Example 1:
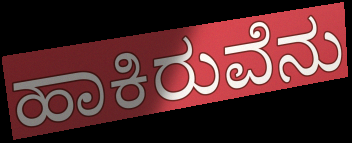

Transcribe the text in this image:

ಹಾಕಿರುವೆನು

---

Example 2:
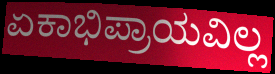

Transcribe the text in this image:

ಏಕಾಭಿಪ್ರಾಯವಿಲ್ಲ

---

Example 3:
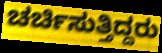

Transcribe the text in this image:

ಚರ್ಚಿಸುತ್ತಿದ್ದರು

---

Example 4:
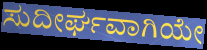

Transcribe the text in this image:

ಸುದೀರ್ಘವಾಗಿಯೇ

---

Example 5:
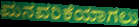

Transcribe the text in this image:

ಮನವರಿಕೆಯಾಗಲು